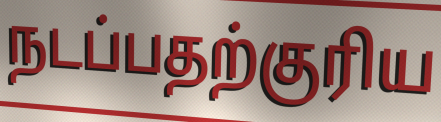
நடப்பதற்குரிய